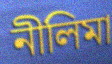
নীলিমা